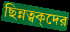
ছিন্নত্বক্দের